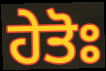
ਹੇਤੋਃ